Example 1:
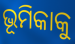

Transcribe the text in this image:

ଭୂମିକାକୁ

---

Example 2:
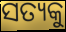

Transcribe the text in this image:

ସତ୍ୟକୁ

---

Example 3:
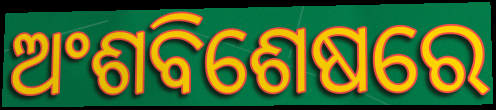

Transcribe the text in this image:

ଅଂଶବିଶେଷରେ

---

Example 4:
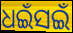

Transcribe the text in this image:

ଧଇଁସଇଁ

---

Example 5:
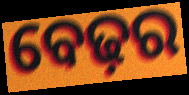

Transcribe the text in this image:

ବେଢ଼ର